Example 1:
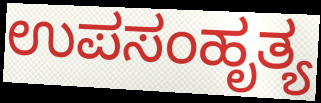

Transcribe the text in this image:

ಉಪಸಂಹೃತ್ಯ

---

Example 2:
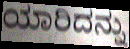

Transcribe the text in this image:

ಯಾರಿದನ್ನು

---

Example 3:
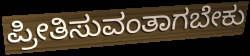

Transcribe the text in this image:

ಪ್ರೀತಿಸುವಂತಾಗಬೇಕು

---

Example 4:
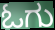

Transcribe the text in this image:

ಓಗು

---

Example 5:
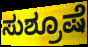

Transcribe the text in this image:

ಸುಶ್ರೂಷೆ